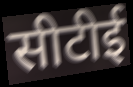
सीटीई